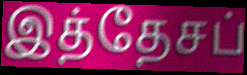
இத்தேசப்